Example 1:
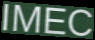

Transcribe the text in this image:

IMEC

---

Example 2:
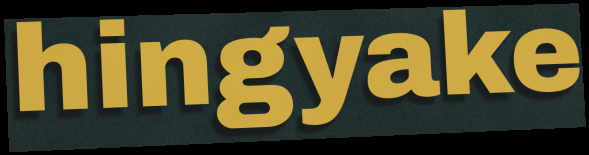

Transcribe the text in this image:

hingyake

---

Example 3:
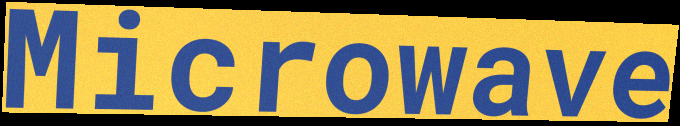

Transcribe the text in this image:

Microwave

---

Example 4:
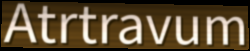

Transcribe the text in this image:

Atrtravum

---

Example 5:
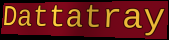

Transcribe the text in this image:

Dattatray